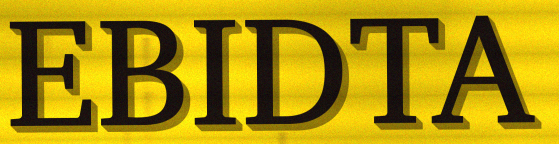
EBIDTA